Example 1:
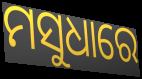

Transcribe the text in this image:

ମସୁଧାରେ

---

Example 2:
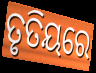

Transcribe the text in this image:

ତୃତିୟରେ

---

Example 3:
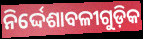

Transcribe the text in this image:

ନିର୍ଦ୍ଦେଶାବଳୀଗୁଡ଼ିକ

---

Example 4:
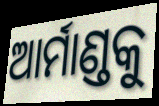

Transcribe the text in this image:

ଆର୍ମାଣ୍ଡକୁ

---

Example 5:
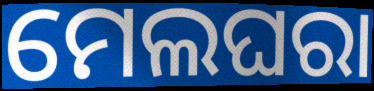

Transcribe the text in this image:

ମେଲଘରା